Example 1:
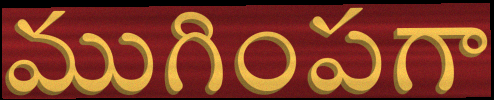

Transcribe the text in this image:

ముగింపగా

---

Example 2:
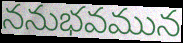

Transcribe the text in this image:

ననుభవమున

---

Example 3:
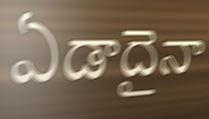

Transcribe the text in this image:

ఏడాదైనా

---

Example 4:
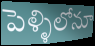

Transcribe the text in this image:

పెళ్ళిలోనూ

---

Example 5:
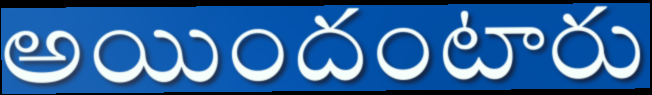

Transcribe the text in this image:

అయిందంటారు